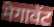
मेगावॅट